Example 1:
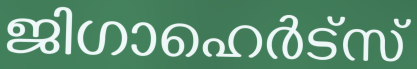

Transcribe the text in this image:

ജിഗാഹെർട്സ്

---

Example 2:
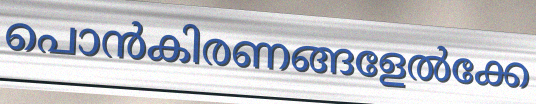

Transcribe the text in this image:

പൊൻകിരണങ്ങളേൽക്കേ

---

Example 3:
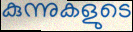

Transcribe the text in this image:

കുന്നുകളുടെ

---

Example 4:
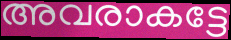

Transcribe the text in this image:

അവരാകട്ടേ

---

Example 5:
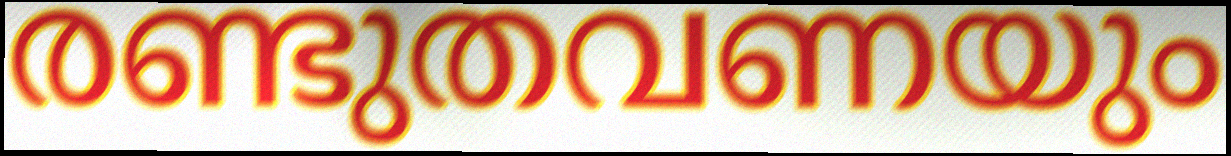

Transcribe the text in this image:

രണ്ടുതവണയും